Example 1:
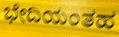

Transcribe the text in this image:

ಭೇದಿಯಂತಹ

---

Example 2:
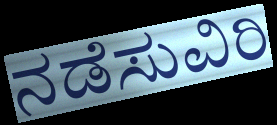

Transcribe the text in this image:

ನಡೆಸುವಿರಿ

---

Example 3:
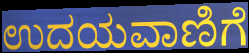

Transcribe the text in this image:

ಉದಯವಾಣಿಗೆ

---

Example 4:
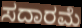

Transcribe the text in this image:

ಸದಾರಮೆ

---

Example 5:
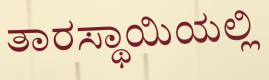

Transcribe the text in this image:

ತಾರಸ್ಥಾಯಿಯಲ್ಲಿ